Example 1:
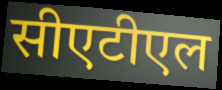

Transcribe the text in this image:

सीएटीएल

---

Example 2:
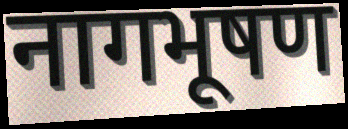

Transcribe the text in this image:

नागभूषण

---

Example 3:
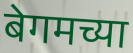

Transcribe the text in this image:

बेगमच्या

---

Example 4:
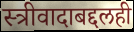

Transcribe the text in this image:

स्त्रीवादाबद्दलही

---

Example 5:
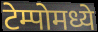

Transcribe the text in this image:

टेम्पोमध्ये